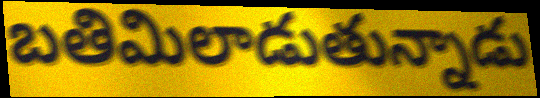
బతిమిలాడుతున్నాడు